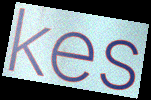
kes